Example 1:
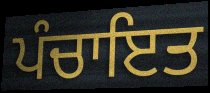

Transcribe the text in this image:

ਪੰਚਾਇਤ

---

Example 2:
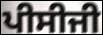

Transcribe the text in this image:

ਪੀਸੀਜੀ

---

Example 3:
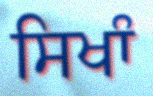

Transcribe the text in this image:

ਸਿਖਾੰ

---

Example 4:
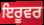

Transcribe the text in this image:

ਇਰੂਵਰ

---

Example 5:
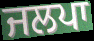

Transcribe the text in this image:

ਜਲਪਾ